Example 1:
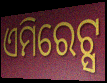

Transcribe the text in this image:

ଏମିରେଟ୍ସ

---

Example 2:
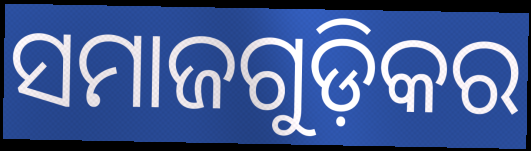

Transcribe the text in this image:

ସମାଜଗୁଡ଼ିକର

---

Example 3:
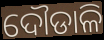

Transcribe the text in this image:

ଦୌଡାଳି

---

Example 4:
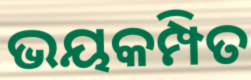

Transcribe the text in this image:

ଭୟକମ୍ପିତ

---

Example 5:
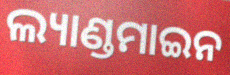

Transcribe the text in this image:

ଲ୍ୟାଣ୍ଡମାଇନ